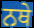
ਨਥੇ